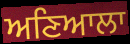
ਅਣਿਆਲਾ